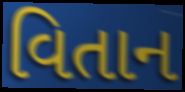
વિતાન